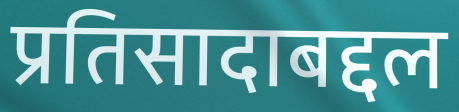
प्रतिसादाबद्दल